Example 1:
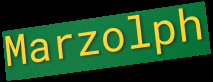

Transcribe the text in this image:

Marzolph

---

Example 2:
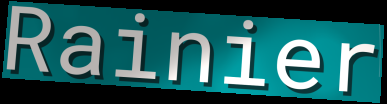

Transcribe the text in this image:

Rainier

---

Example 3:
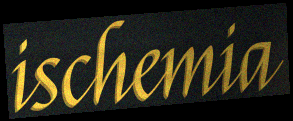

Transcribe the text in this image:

ischemia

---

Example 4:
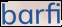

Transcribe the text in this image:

barfi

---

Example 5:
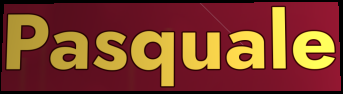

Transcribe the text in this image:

Pasquale